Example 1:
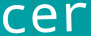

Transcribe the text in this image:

cer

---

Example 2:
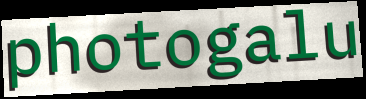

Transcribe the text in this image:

photogalu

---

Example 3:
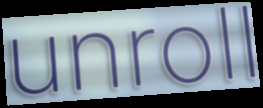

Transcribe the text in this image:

unroll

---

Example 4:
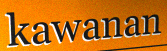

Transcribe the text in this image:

kawanan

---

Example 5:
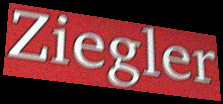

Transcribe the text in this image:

Ziegler